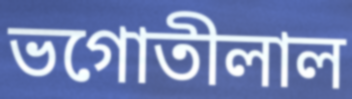
ভগোতীলাল